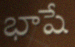
భాషే